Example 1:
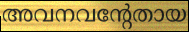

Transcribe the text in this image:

അവനവന്റേതായ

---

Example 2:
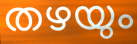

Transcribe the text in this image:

തഴയും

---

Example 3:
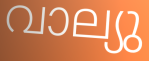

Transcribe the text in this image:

വാല്യു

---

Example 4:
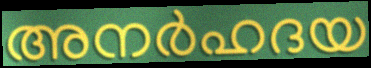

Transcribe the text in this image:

അനർഹദയ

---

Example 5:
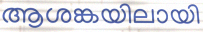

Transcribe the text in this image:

ആശങ്കയിലായി